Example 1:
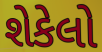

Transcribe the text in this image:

શેકેલો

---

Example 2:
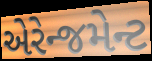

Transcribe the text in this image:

એરેન્જમેન્ટ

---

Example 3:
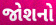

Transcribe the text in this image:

જોશનો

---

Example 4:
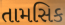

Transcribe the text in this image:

તામસિક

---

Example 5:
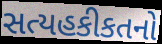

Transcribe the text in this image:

સત્યહકીકતનો